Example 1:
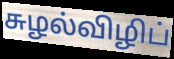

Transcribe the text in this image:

சுழல்விழிப்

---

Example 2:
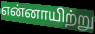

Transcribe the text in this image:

என்னாயிற்று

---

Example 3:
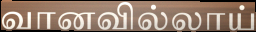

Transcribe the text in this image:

வானவில்லாய்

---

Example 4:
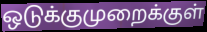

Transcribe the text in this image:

ஒடுக்குமுறைக்குள்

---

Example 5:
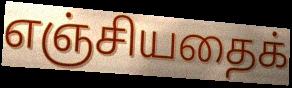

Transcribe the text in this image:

எஞ்சியதைக்